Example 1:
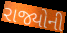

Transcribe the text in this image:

રાજ્યોની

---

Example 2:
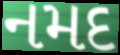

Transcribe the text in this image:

નમદ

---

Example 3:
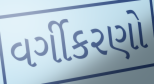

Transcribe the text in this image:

વર્ગીકરણો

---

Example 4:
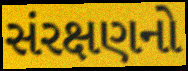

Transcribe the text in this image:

સંરક્ષણનો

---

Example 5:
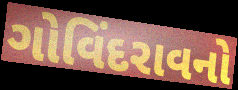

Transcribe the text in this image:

ગોવિંદરાવનો